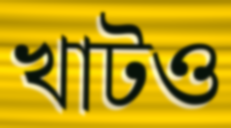
খাটও